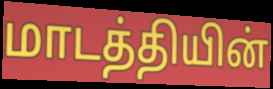
மாடத்தியின்